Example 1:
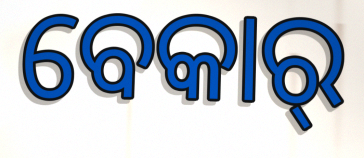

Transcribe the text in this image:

ବେକାର୍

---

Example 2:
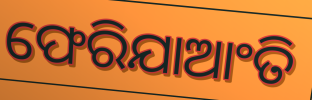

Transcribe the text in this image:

ଫେରିଯାଆଂତି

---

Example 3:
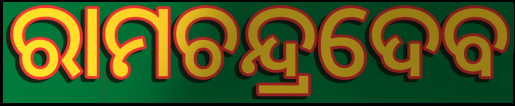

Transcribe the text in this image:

ରାମଚନ୍ଦ୍ରଦେବ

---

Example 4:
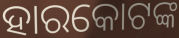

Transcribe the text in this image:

ହାରକୋଟଙ୍କ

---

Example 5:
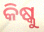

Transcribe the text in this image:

କିଷ୍କୁ